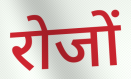
रोजों